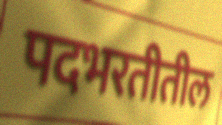
पदभरतीतील